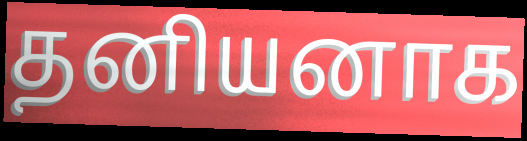
தனியனாக